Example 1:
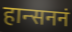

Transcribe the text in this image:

हान्सननं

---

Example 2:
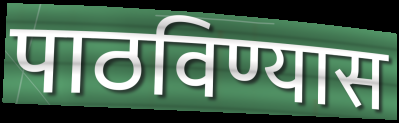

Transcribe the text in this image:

पाठविण्यास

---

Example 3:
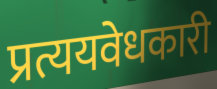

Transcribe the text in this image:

प्रत्ययवेधकारी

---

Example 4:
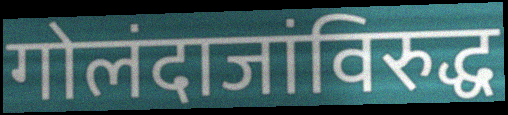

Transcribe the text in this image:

गोलंदाजांविरुद्ध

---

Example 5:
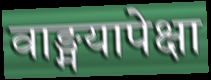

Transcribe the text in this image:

वाङ्मयापेक्षा